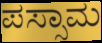
ಪಸ್ಸಾಮ